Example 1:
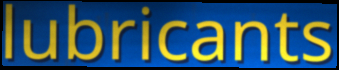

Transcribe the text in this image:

lubricants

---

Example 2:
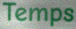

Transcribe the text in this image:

Temps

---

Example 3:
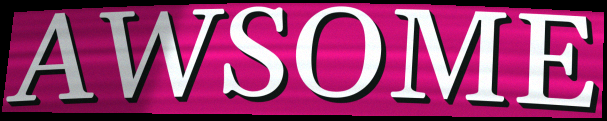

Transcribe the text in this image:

AWSOME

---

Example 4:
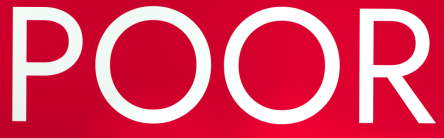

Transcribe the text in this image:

POOR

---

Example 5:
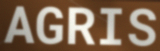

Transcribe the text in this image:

AGRIS